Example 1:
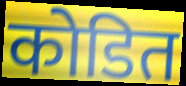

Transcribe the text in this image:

कोडित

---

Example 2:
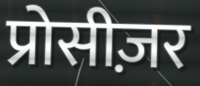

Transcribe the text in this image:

प्रोसीज़र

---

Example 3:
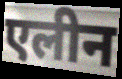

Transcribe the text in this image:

एलीन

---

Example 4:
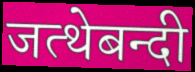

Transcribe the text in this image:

जत्थेबन्दी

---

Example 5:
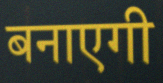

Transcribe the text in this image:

बनाएगी